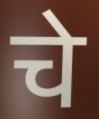
चे